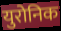
युरोनिक